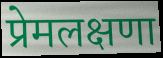
प्रेमलक्षणा